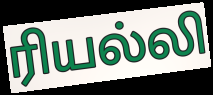
ரியல்லி